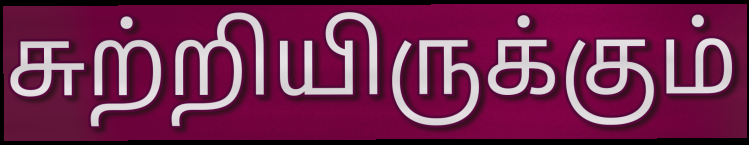
சுற்றியிருக்கும்